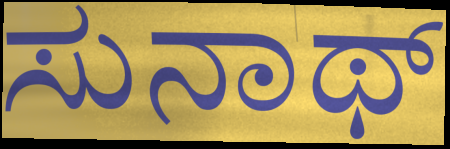
ಸುನಾಥ್